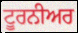
ਟੂਰਨੀਅਰ